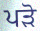
ਪੜੋ